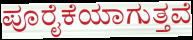
ಪೂರೈಕೆಯಾಗುತ್ತವೆ